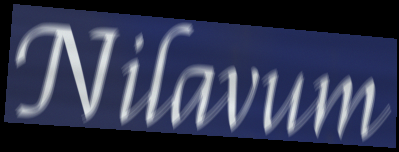
Nilavum